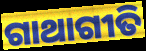
ଗାଥାଗୀତି